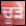
ਚੂੜੇ